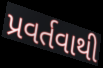
પ્રવર્તવાથી